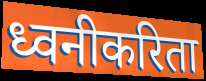
ध्वनीकरिता